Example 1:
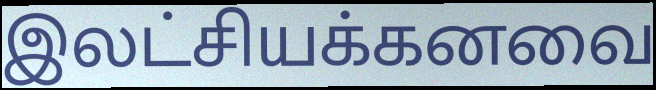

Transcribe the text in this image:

இலட்சியக்கனவை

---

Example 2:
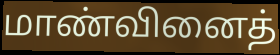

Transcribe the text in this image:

மாண்வினைத்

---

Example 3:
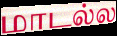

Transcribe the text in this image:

மாடல்ல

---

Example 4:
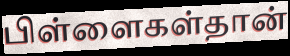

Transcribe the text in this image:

பிள்ளைகள்தான்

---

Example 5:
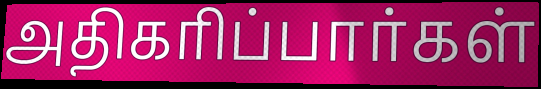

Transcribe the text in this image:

அதிகரிப்பார்கள்